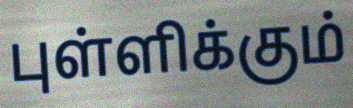
புள்ளிக்கும்